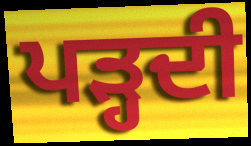
ਪੜ੍ਹਦੀ